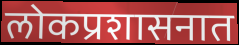
लोकप्रशासनात